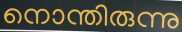
നൊന്തിരുന്നു